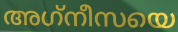
അഗ്‌നീസയെ